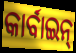
କାର୍ବାଇନ୍